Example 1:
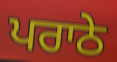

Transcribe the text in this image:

ਪਰਾਠੇ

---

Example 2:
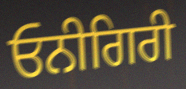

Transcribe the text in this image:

ਓਨੀਗਿਰੀ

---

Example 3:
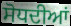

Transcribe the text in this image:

ਸੋਧਦੀਆਂ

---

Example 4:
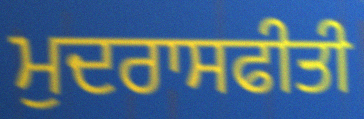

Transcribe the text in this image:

ਮੁਦਰਾਸਫੀਤੀ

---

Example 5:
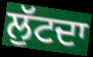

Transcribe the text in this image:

ਲੁੱਟਦਾ